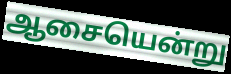
ஆசையென்று